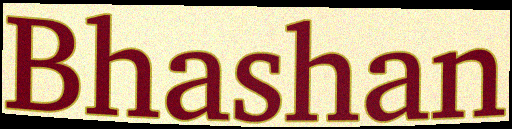
Bhashan